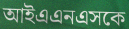
আইএএনএসকে